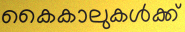
കൈകാലുകൾക്ക്